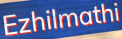
Ezhilmathi